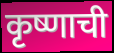
कृष्णाची